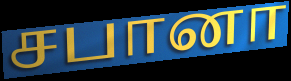
சபானா